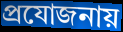
প্রযোজনায়